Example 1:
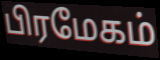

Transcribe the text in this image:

பிரமேகம்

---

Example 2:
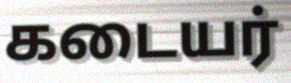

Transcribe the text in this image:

கடையர்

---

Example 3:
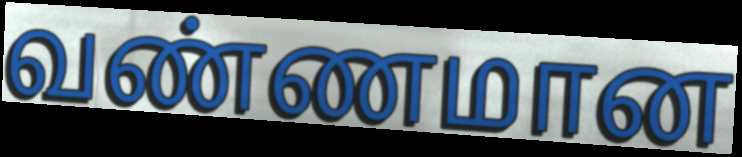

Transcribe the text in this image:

வண்ணமான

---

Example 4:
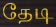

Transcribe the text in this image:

தேடி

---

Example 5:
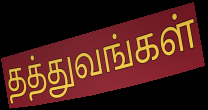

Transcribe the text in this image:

தத்துவங்கள்